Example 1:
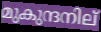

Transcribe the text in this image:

മുകുന്ദനില്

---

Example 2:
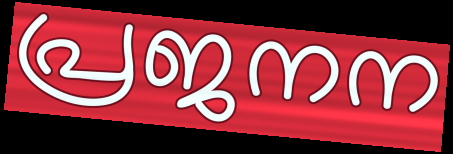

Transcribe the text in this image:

പ്രജനന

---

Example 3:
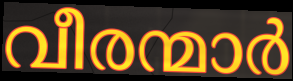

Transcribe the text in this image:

വീരന്മാർ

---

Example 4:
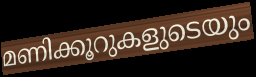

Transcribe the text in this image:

മണിക്കൂറുകളുടെയും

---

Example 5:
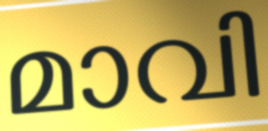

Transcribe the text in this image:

മാവി